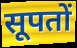
सूपतों